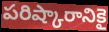
పరిష్కారానికై